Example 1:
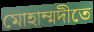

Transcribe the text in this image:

মোহাম্মদীতে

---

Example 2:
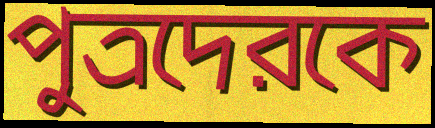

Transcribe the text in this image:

পুত্রদেরকে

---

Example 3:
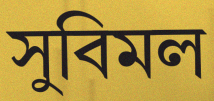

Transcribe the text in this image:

সুবিমল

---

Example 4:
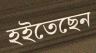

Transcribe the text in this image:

হইতেছেন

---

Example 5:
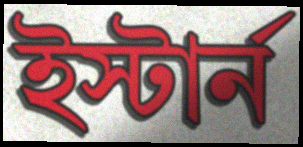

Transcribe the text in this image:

ইস্টার্ন